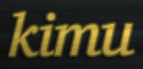
kimu